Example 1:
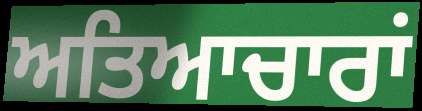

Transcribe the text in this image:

ਅਤਿਆਚਾਰਾਂ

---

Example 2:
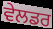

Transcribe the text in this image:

ਵੇਲਡਰ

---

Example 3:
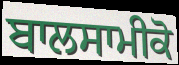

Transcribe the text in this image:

ਬਾਲਸਾਮੀਕੋ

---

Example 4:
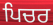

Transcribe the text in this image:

ਪਿਚਰ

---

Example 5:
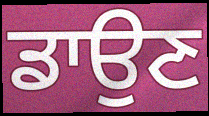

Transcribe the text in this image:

ਡਾਉਣ